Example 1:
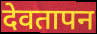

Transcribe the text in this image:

देवतापन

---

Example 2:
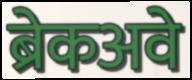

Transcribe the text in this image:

ब्रेकअवे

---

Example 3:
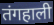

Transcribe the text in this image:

तंगहाली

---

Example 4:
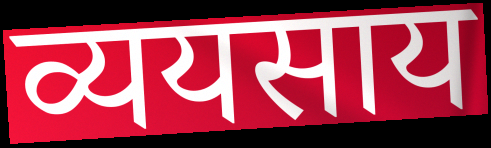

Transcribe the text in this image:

व्ययसाय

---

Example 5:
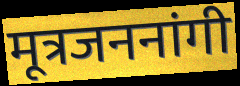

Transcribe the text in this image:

मूत्रजननांगी